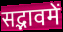
सद्भावमें